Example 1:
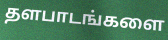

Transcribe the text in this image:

தளபாடங்களை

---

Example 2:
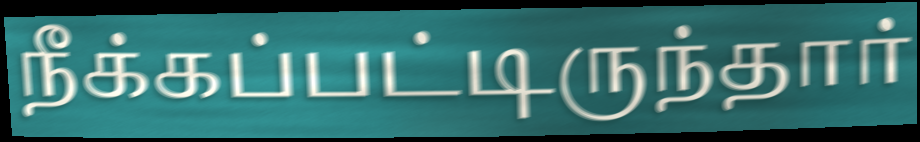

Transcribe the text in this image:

நீக்கப்பட்டிருந்தார்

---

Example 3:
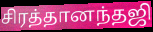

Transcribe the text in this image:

சிரத்தானந்தஜி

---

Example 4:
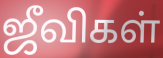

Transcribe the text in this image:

ஜீவிகள்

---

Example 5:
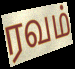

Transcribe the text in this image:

ரவம்